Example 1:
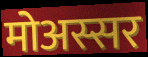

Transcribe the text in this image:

मोअस्सर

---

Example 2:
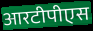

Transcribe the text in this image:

आरटीपीएस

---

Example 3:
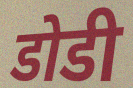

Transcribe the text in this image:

डोडी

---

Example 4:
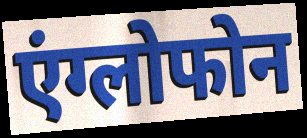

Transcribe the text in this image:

एंग्लोफोन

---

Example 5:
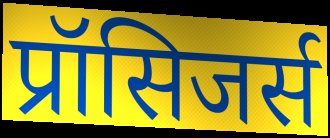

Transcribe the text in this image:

प्रॉसिजर्स